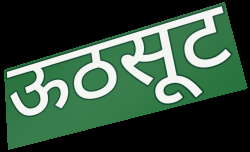
ऊठसूट